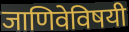
जाणिवेविषयी